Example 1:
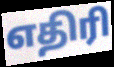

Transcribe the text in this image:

எதிரி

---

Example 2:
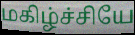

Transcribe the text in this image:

மகிழ்ச்சியே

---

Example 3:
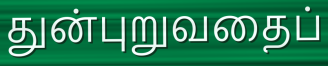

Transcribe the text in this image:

துன்புறுவதைப்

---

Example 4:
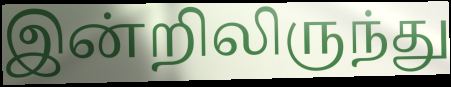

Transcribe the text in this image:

இன்றிலிருந்து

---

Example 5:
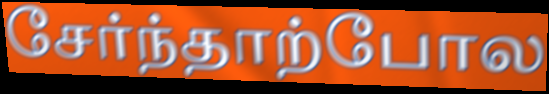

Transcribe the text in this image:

சேர்ந்தாற்போல